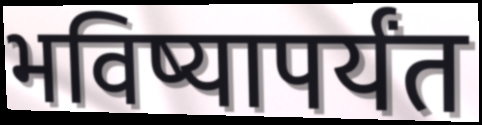
भविष्यापर्यंत